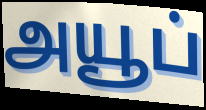
அயூப்